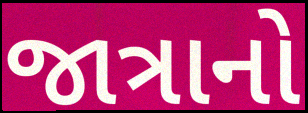
જાત્રાનો